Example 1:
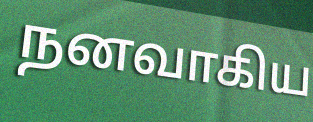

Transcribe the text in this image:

நனவாகிய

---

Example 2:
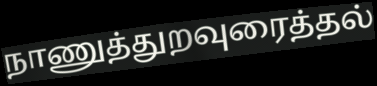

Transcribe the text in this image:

நாணுத்துறவுரைத்தல்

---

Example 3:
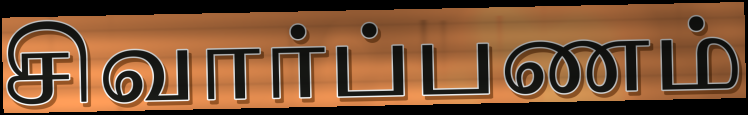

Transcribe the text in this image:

சிவார்ப்பணம்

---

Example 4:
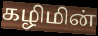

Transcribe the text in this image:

கழிமின்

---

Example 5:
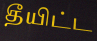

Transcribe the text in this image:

தீயிட்ட